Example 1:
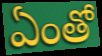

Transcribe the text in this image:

ఏంతో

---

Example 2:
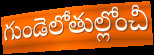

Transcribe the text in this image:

గుండెలోతుల్లోంచీ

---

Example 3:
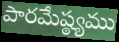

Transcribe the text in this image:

పారమేష్ఠ్యము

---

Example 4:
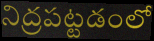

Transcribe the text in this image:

నిద్రపట్టడంలో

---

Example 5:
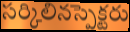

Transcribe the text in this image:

సర్కిలినస్పెక్టరు